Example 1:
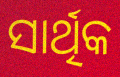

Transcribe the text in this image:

ସାର୍ଥିକ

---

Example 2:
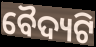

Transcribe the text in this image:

ବୈଦ୍ୟଟି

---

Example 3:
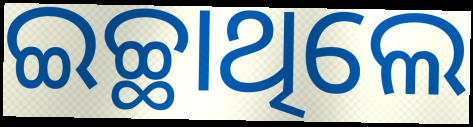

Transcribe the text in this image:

ଇଚ୍ଛାଥିଲେ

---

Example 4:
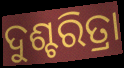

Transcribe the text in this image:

ଦୁଶ୍ଚରିତ୍ରା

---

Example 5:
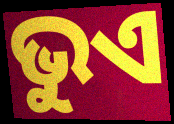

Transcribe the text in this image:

ଭୁଏ